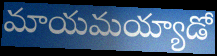
మాయమయ్యాడో